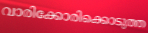
വാരിക്കോരിക്കൊടുത്ത